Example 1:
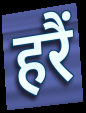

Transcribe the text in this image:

हरैं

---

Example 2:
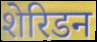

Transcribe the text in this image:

शेरिडन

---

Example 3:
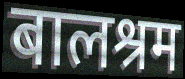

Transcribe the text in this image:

बालश्रम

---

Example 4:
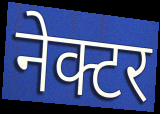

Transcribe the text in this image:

नेक्टर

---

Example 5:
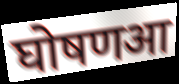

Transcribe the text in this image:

घोषणआ